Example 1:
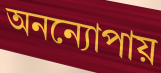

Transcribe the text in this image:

অনন্যোপায়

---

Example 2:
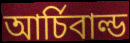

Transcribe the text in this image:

আর্চিবাল্ড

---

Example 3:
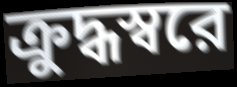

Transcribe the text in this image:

ক্রুদ্ধস্বরে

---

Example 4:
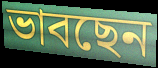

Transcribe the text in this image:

ভাবছেন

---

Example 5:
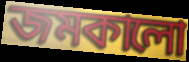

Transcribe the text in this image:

জমকালো